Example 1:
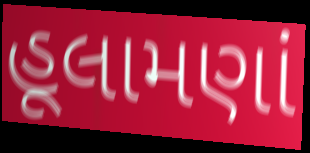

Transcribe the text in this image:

હૂલામણાં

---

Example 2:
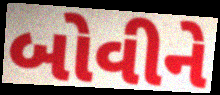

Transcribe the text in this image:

બોવીને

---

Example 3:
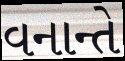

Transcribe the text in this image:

વનાન્તે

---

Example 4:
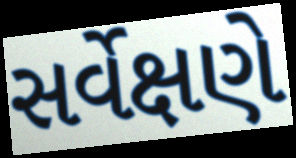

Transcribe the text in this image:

સર્વેક્ષણે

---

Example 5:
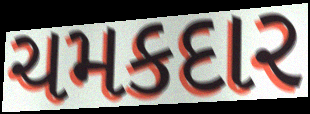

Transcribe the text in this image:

ચમકદાર